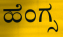
ಹೆಂಗ್ಸ